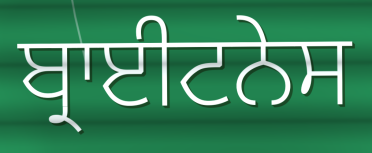
ਬ੍ਰਾਈਟਨੇਸ